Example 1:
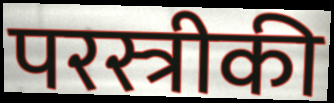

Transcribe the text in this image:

परस्त्रीकी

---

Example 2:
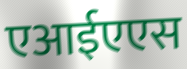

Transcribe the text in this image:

एआईएएस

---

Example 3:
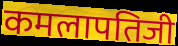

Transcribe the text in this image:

कमलापतिजी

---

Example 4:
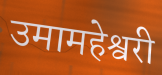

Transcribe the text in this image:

उमामहेश्वरी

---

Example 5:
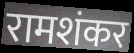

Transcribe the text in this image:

रामशंकर